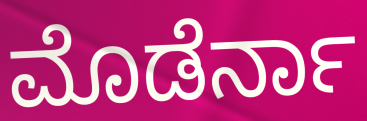
ಮೊಡೆರ್ನಾ